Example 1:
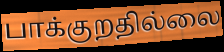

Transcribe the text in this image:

பாக்குறதில்லை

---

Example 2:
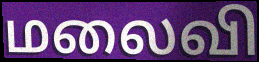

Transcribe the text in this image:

மலைவி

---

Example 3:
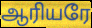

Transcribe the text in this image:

ஆரியரே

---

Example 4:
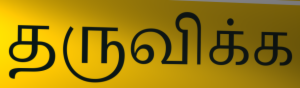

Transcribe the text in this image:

தருவிக்க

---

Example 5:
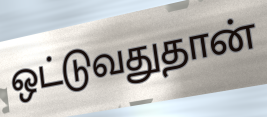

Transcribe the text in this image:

ஒட்டுவதுதான்